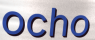
ocho